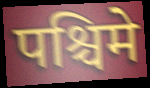
पश्चिमे